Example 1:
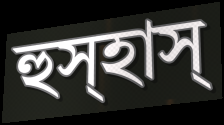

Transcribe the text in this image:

হুস্হাস্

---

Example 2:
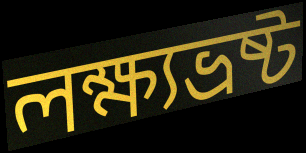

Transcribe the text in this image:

লক্ষ্যভ্রষ্ট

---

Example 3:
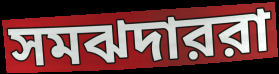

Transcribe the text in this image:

সমঝদাররা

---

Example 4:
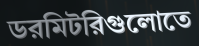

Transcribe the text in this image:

ডরমিটরিগুলোতে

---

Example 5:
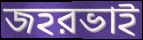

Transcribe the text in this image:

জহরভাই